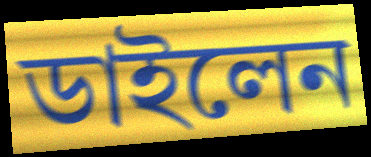
ডাইলেন